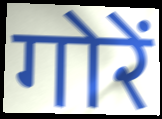
गोरें